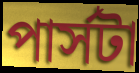
পার্সটা